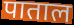
पाताल